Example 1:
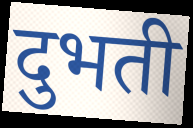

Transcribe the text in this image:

दुभती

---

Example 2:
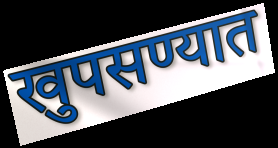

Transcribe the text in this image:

खुपसण्यात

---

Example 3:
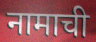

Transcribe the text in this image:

नामाची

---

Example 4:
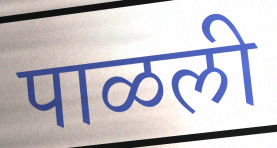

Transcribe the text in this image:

पाळली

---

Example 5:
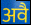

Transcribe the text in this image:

अवै